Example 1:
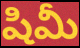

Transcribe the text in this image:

షిమీ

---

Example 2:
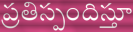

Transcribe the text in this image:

ప్రతిస్పందిస్తూ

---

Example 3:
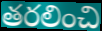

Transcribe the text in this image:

తరలించి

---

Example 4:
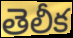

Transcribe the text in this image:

తెలీక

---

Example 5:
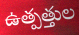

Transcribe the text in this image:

ఉత్పత్తుల